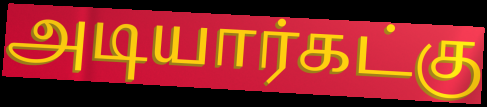
அடியார்கட்கு